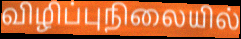
விழிப்புநிலையில்